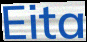
Eita